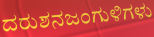
ದರುಶನಜಂಗುಳಿಗಳು